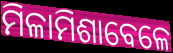
ମିଳାମିଶାବେଳେ